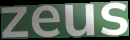
zeus